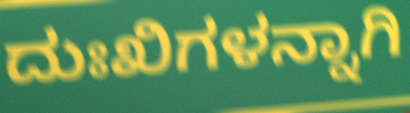
ದುಃಖಿಗಳನ್ನಾಗಿ